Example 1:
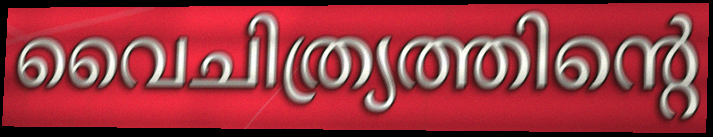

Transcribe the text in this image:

വൈചിത്ര്യത്തിന്റെ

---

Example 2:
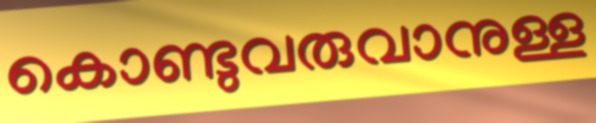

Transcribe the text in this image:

കൊണ്ടുവരുവാനുള്ള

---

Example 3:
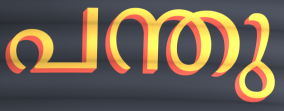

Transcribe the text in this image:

പന്തു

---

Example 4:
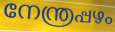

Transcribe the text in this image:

നേന്ത്രപ്പഴം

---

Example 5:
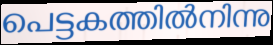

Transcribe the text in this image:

പെട്ടകത്തിൽനിന്നു